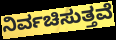
ನಿರ್ವಚಿಸುತ್ತವೆ